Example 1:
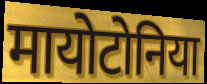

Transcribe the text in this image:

मायोटोनिया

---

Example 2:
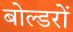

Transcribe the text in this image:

बोल्डरों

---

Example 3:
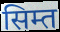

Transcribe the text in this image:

सिम्त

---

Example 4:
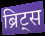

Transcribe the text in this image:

ब्रिट्स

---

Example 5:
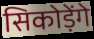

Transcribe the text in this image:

सिकोड़ेंगे